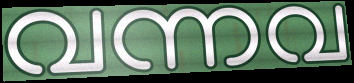
വന്നവ